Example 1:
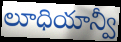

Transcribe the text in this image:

లూధియాన్వీ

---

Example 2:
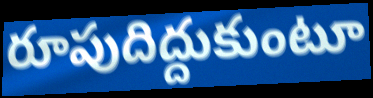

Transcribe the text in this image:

రూపుదిద్దుకుంటూ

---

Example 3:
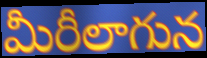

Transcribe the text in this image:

మీరీలాగున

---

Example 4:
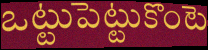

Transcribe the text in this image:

ఒట్టుపెట్టుకొంటె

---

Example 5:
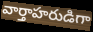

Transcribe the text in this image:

వార్తాహరుడిగా